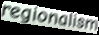
regionalism